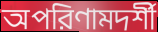
অপরিণামদর্শী